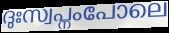
ദുഃസ്വപ്നംപോലെ